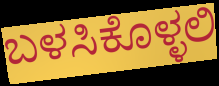
ಬಳಸಿಕೊಳ್ಳಲಿ